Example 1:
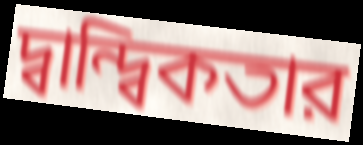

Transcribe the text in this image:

দ্বান্দ্বিকতার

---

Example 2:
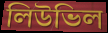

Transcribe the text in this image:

লিউভিল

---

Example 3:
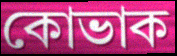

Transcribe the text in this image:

কোভাক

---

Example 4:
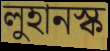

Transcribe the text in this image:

লুহানস্ক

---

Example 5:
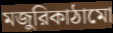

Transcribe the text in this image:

মজুরিকাঠামো